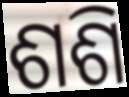
ଶଶି